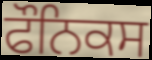
ਫੌਨਿਕਸ